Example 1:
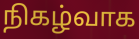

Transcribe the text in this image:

நிகழ்வாக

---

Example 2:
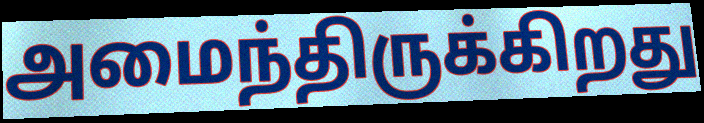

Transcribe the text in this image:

அமைந்திருக்கிறது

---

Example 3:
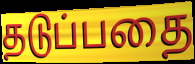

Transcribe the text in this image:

தடுப்பதை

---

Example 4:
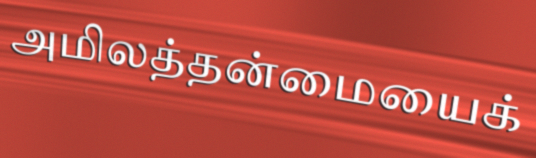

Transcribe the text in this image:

அமிலத்தன்மையைக்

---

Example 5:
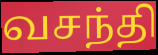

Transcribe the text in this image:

வசந்தி